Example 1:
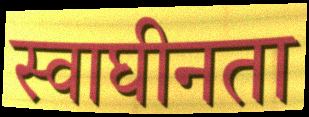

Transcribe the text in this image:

स्वाघीनता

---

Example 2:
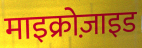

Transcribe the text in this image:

माइक्रोज़ाइड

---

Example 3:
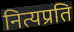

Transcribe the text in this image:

नित्यप्रति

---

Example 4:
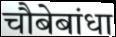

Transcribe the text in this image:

चौबेबांधा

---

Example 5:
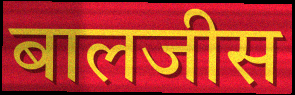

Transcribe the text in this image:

बालजीस